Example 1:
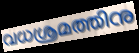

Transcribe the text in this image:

വധശ്രമത്തിനു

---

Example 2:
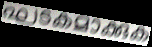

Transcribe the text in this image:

ഘടകമാക്കുക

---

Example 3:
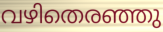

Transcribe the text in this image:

വഴിതെരഞ്ഞു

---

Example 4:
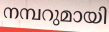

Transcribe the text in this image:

നമ്പറുമായി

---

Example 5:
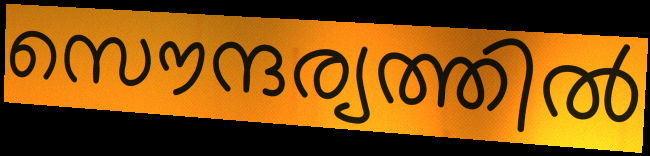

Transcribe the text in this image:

സൌന്ദര്യത്തിൽ